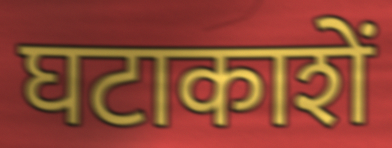
घटाकाशें